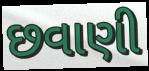
છવાણી